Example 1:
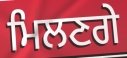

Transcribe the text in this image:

ਮਿਲਣਗੇ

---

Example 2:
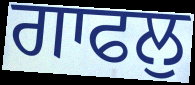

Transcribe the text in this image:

ਗਾਫਲੁ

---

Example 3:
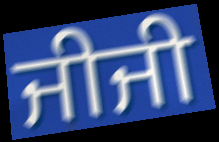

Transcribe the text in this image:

ਜੀਜੀ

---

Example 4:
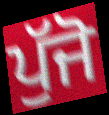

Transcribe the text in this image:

ਪੁੱਜੋ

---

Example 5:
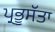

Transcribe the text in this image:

ਪ੍ਰਭੂਸੱਤਾ